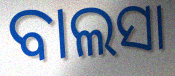
ବାଲସା